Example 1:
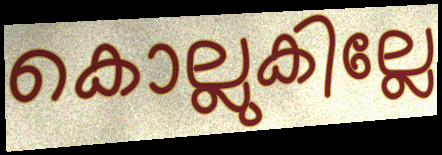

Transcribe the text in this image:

കൊല്ലുകില്ലേ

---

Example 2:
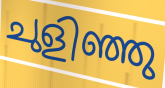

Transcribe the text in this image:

ചുളിഞ്ഞു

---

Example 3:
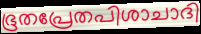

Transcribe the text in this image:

ഭൂതപ്രേതപിശാചാദി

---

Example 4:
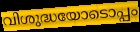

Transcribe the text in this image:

വിശുദ്ധയോടൊപ്പം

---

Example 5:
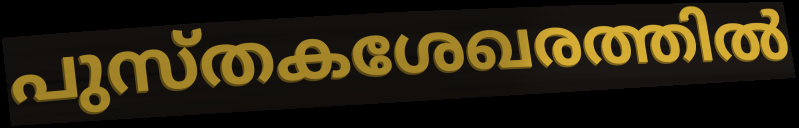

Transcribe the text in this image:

പുസ്തകശേഖരത്തിൽ